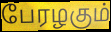
பேரழகும்